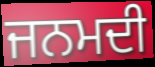
ਜਨਮਦੀ